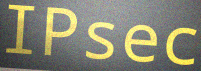
IPsec